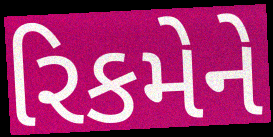
રિકમેને